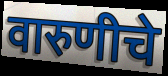
वारुणीचे